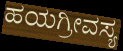
ಹಯಗ್ರೀವಸ್ಯ